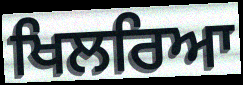
ਖਿਲਰਿਆ